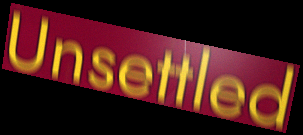
Unsettled